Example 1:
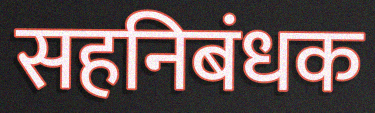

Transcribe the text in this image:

सहनिबंधक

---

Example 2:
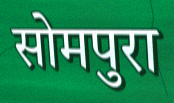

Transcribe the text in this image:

सोमपुरा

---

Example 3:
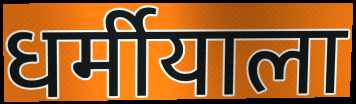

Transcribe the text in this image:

धर्मीयाला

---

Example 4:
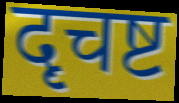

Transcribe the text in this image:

दृचष्ट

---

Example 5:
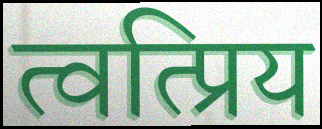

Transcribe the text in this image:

त्वत्प्रिय